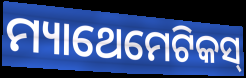
ମ୍ୟାଥେମେଟିକସ୍